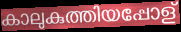
കാലുകുത്തിയപ്പോള്